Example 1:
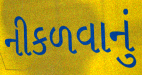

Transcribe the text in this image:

નીકળવાનું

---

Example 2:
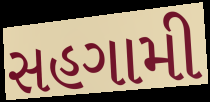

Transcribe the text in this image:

સહગામી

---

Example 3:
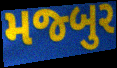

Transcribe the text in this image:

મજ્બુર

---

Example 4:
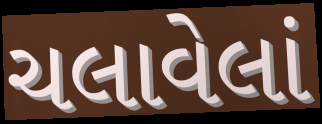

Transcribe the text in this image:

ચલાવેલાં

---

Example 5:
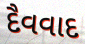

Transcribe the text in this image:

દૈવવાદ